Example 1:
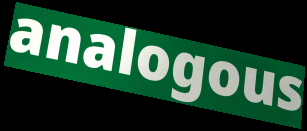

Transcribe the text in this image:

analogous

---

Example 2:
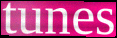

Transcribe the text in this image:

tunes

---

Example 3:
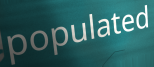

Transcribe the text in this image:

populated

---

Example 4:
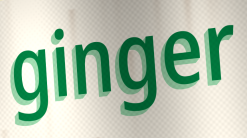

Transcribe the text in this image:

ginger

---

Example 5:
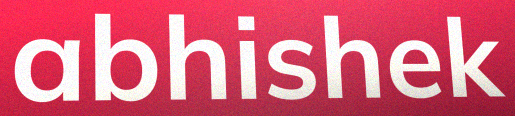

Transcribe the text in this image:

abhishek